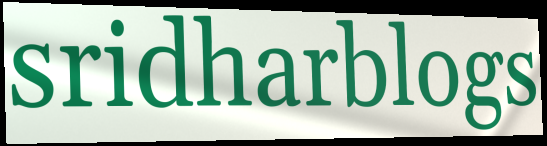
sridharblogs